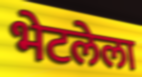
भेटलेला